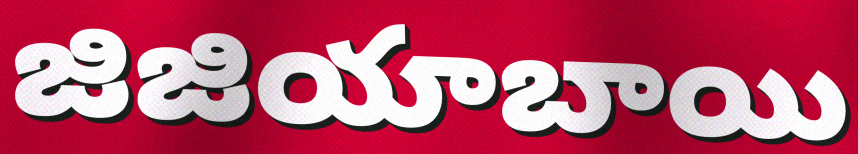
జిజియాబాయి